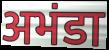
अभंडा